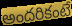
అందరికంటే